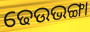
ଢେଉଭଙ୍ଗା